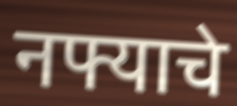
नफ्याचे